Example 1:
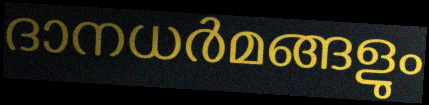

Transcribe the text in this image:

ദാനധർമങ്ങളും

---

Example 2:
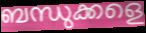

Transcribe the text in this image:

ബന്ധുക്കളെ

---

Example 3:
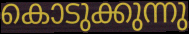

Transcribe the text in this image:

കൊടുക്കുന്നു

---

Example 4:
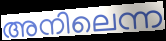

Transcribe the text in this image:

അനിലെന്ന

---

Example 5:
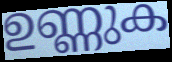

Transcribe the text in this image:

ഉണ്ണുക